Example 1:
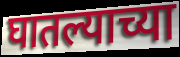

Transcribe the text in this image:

घातल्याच्या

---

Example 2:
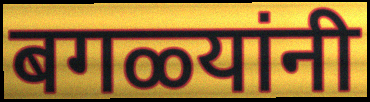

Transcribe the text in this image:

बगळ्यांनी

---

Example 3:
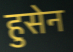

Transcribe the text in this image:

हुसेन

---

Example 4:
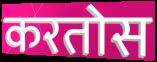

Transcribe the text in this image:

करतोस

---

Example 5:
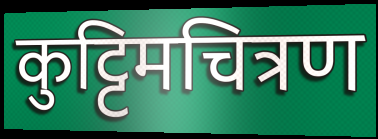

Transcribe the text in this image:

कुट्टिमचित्रण